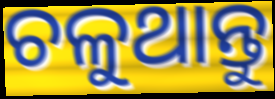
ଚଳୁଥାନ୍ତୁ